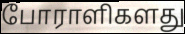
போராளிகளது